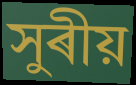
সুৰীয়